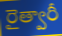
రైత్వారీ